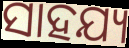
ସାହଯ୍ୟ